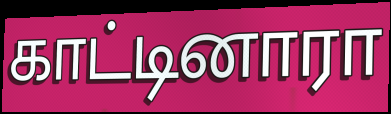
காட்டினாரா